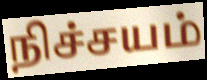
நிச்சயம்